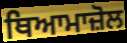
ਥਿਆਮਾਜ਼ੋਲ